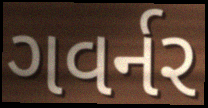
ગવર્નર